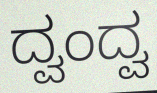
ದ್ವಂದ್ವ